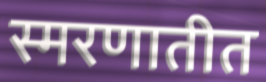
स्मरणातीत